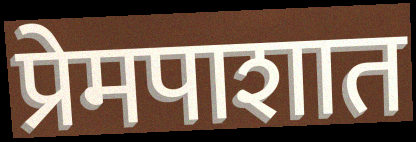
प्रेमपाशात